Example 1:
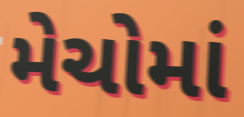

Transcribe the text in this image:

મેચોમાં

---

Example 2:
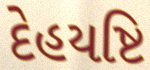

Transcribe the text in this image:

દેહયષ્ટિ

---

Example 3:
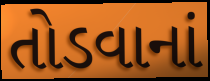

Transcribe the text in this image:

તોડવાનાં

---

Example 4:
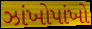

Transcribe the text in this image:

ઝાંખોપાંખો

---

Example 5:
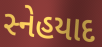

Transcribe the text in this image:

સ્નેહયાદ